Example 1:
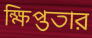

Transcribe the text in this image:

ক্ষিপ্ততার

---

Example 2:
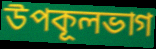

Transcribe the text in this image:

উপকূলভাগ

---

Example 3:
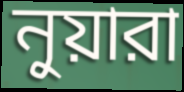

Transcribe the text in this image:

নুয়ারা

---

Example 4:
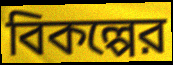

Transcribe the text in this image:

বিকল্পের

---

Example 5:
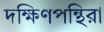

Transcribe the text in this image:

দক্ষিণপন্থিরা